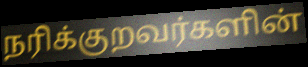
நரிக்குறவர்களின்